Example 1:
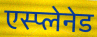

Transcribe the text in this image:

एस्प्लेनेड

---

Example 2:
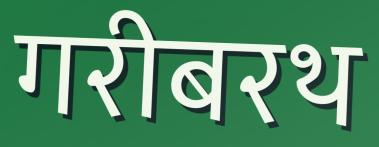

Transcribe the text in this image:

गरीबरथ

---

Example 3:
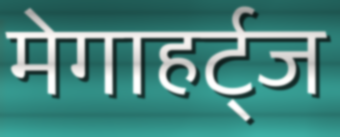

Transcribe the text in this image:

मेगाहर्ट्ज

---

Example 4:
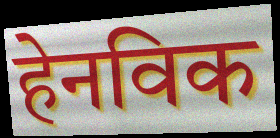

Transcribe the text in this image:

हेनविक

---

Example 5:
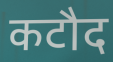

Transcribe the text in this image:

कटौद